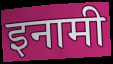
इनामी